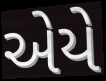
એયે